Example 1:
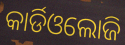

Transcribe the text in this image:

କାର୍ଡିଓଲୋଜି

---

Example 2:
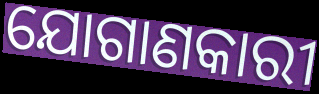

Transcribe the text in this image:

ଯୋଗାଣକାରୀ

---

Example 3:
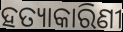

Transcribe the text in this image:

ହତ୍ୟାକାରିଣୀ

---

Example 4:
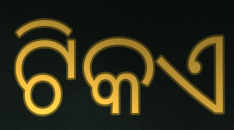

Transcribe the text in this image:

ଟିକଏ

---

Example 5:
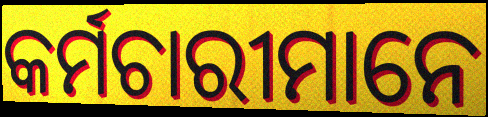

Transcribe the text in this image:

କର୍ମଚାରୀମାନେ